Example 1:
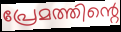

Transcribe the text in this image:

പ്രേമത്തിന്റെ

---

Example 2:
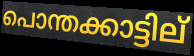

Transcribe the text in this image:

പൊന്തക്കാട്ടില്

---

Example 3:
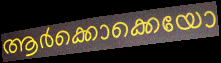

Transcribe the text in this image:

ആർക്കൊക്കെയോ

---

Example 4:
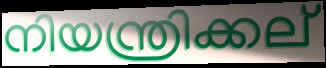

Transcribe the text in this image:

നിയന്ത്രിക്കല്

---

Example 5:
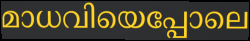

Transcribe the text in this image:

മാധവിയെപ്പോലെ